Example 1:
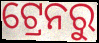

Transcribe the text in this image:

ଟ୍ରେନରୁ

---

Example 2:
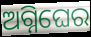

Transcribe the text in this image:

ଅଗ୍ନିଘେର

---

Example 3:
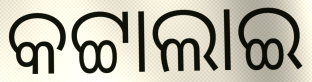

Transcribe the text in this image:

କଟ୍ଟାଲାଇ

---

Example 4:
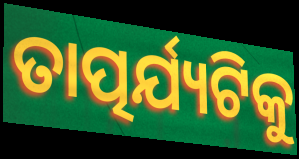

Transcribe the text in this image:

ତାତ୍ପର୍ଯ୍ୟଟିକୁ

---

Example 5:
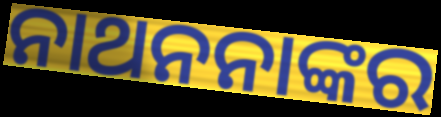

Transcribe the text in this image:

ନାଥନନାଙ୍କର